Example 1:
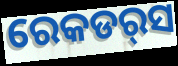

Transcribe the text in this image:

ରେକଡର୍‌ସ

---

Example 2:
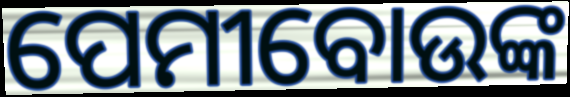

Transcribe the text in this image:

ପେମୀବୋଉଙ୍କ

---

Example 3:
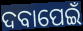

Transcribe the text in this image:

ଦବାପେଇଁ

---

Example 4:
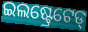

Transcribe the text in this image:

ଇଲଷ୍ଟ୍ରେଟେଡ୍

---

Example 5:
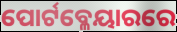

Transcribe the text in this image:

ପୋର୍ଟବ୍ଳେୟାରରେ